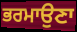
ਭਰਮਾਉਣਾ